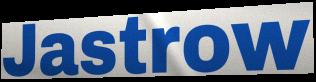
Jastrow